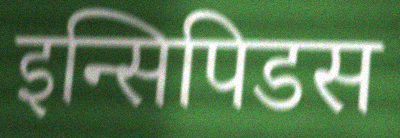
इन्सिपिडस